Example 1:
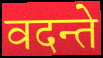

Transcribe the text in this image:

वदन्ते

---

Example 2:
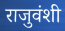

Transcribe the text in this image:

राजुवंशी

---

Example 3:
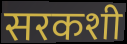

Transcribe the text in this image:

सरकशी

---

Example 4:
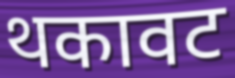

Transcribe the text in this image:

थकावट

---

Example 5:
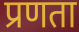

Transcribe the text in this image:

प्रणता